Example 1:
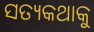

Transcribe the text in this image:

ସତ୍ୟକଥାକୁ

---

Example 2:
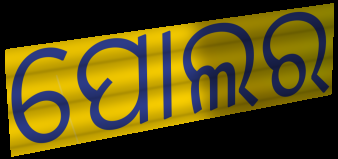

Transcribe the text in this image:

ପୋଲର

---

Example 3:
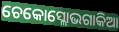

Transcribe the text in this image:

ଚେକୋସ୍ଲୋଭଗାକିଆ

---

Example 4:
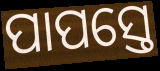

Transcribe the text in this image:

ପାପସ୍ତେ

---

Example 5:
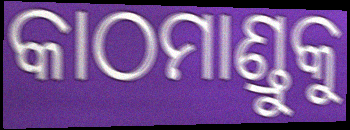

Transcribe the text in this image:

କାଠମାଣ୍ଡୁକୁ